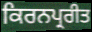
ਕਿਰਨਪ੍ਰਰੀਤ